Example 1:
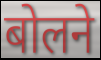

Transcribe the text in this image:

बोलने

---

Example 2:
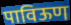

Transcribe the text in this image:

पाविऊण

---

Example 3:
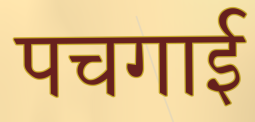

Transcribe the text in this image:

पचगाई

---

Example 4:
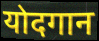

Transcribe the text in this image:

योदगान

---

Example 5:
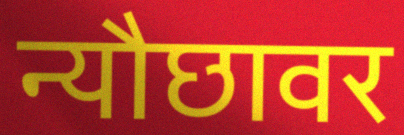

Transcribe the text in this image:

न्यौछावर